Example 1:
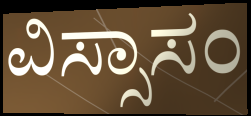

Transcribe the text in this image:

ವಿಸ್ಸಾಸಂ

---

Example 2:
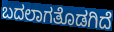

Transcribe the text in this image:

ಬದಲಾಗತೊಡಗಿದೆ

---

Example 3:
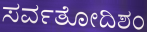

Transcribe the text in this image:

ಸರ್ವತೋದಿಶಂ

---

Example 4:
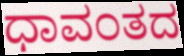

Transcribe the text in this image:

ಧಾವಂತದ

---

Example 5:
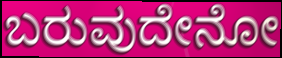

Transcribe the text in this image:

ಬರುವುದೇನೋ